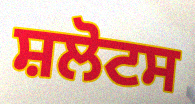
ਸ਼ਲੋਟਸ